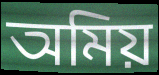
অমিয়